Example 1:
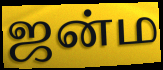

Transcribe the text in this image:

ஜன்ம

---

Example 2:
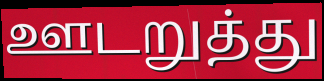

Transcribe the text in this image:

ஊடறுத்து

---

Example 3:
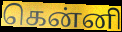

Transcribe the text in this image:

கென்னி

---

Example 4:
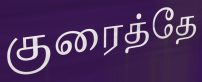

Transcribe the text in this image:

குரைத்தே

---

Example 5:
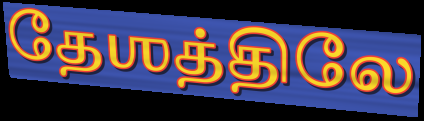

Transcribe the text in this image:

தேஶத்திலே